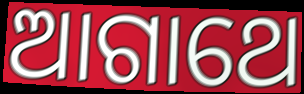
ଆଗାଥେ